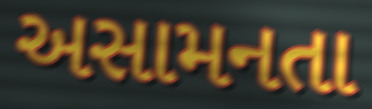
અસામનતા